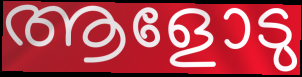
ആളോടു